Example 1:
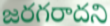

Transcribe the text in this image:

జరగరాదని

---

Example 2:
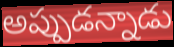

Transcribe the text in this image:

అప్పుడన్నాడు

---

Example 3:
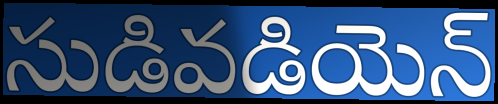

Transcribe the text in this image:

సుడివడియెన్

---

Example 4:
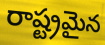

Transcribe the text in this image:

రాష్ట్రమైన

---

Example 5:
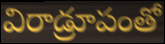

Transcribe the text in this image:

విరాడ్రూపంతో